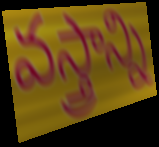
వస్త్రాన్ని